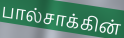
பால்சாக்கின்